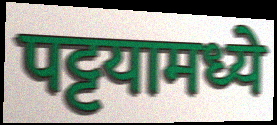
पट्टयामध्ये